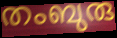
തംബുരു